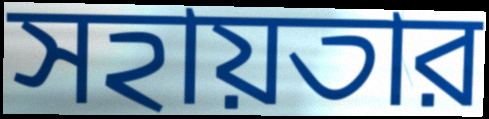
সহায়তার